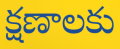
క్షణాలకు